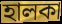
হালকা